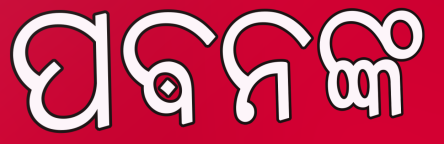
ପଵନଙ୍କ